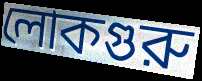
লোকগুরু